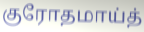
குரோதமாய்த்